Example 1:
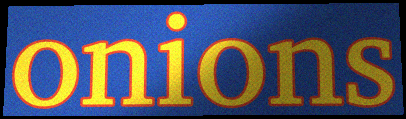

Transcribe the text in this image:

onions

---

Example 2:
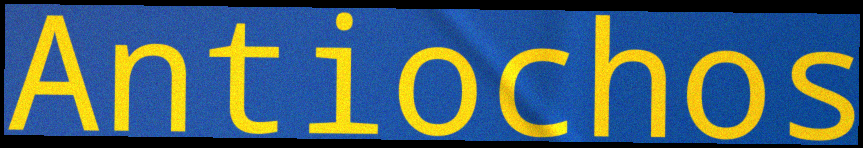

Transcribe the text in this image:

Antiochos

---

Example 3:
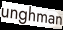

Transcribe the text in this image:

unghman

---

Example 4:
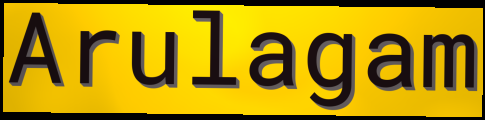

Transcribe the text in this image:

Arulagam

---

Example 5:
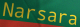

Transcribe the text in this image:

Narsara